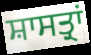
ਸ਼ਾਸਤ੍ਰਾਂ